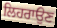
ਲਿਹਰਾਉਣ